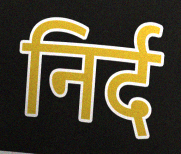
निर्द